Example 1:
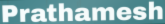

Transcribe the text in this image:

Prathamesh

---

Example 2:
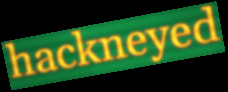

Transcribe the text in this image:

hackneyed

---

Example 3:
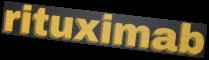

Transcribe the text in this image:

rituximab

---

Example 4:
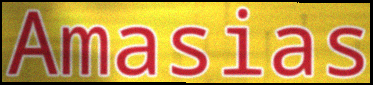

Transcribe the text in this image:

Amasias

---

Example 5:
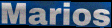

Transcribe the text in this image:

Marios